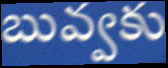
బువ్వకు